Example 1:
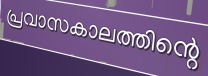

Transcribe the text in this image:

പ്രവാസകാലത്തിന്റെ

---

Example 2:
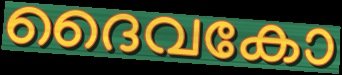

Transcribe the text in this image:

ദൈവകോ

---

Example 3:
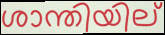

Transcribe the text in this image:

ശാന്തിയില്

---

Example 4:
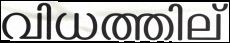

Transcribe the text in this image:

വിധത്തില്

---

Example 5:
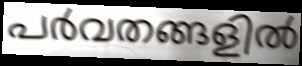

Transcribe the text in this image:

പർവതങ്ങളിൽ